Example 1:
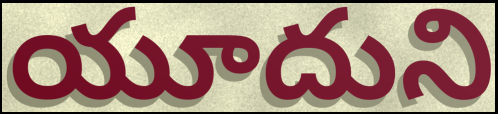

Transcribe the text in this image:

యూదుని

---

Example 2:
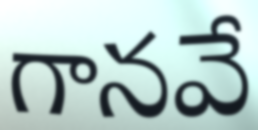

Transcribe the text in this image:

గానవే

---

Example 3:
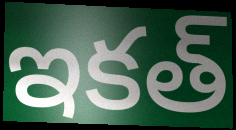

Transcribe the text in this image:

ఇకత్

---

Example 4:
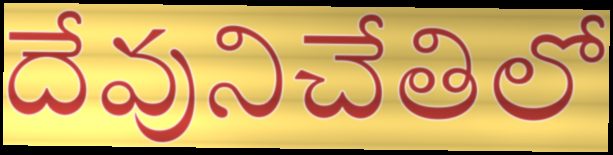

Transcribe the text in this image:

దేవునిచేతిలో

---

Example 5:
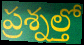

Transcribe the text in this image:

ప్రశ్నల్తో